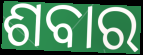
ଶବାର